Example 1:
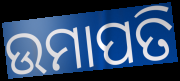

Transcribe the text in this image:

ଉମାପତି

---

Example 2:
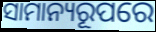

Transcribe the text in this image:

ସାମାନ୍ୟରୂପରେ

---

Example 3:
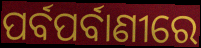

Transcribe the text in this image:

ପର୍ବପର୍ବାଣୀରେ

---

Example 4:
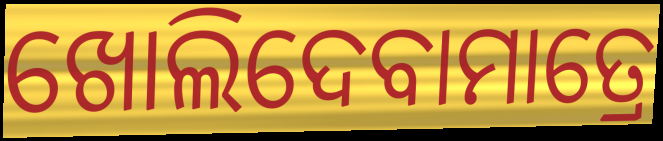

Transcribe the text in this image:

ଖୋଲିଦେବାମାତ୍ରେ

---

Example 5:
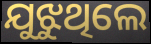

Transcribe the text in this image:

ଯୁଝୁଥିଲେ